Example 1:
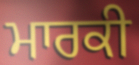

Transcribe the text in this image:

ਮਾਰਕੀ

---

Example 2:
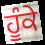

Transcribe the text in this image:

ਹੂੰਕੇ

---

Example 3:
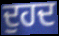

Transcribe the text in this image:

ਦੁਹਦ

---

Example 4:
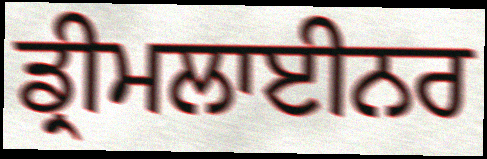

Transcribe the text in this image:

ਡ੍ਰੀਮਲਾਈਨਰ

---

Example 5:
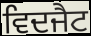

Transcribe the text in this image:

ਵਿਦਜੈਟ